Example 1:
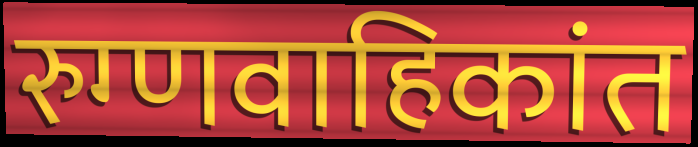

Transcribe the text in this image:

रुग्णवाहिकांत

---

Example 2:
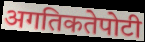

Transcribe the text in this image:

अगतिकतेपोटी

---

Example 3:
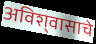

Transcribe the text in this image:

अविश्वासाचे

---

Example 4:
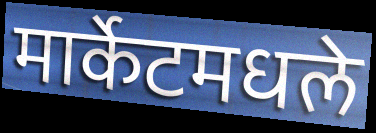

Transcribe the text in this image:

मार्केटमधले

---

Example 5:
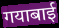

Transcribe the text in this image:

गयाबाई